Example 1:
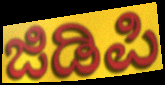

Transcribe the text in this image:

ಜಿಡಿಪಿ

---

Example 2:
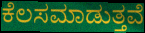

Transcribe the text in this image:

ಕೆಲಸಮಾಡುತ್ತವೆ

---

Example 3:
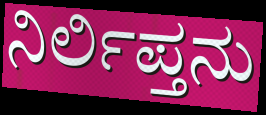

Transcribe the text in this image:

ನಿರ್ಲಿಪ್ತನು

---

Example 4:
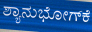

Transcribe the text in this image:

ಶ್ಯಾನುಭೋಗ್‌ಕೆ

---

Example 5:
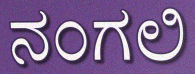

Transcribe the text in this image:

ನಂಗಲಿ